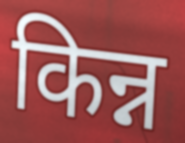
किन्न